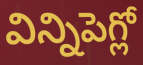
విన్నిపెగ్లో